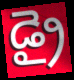
డ్రై